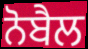
ਨੋਬੈਲ